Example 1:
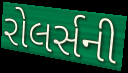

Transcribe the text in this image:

રોલર્સની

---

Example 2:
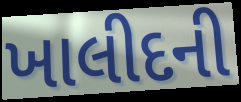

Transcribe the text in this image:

ખાલીદની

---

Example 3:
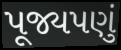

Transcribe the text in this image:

પૂજ્યપણું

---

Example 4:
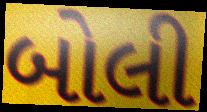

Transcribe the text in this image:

બોલી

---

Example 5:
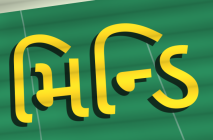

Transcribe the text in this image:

મિન્ડિ